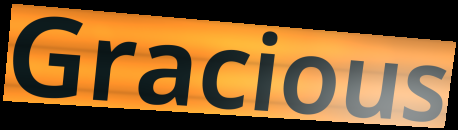
Gracious